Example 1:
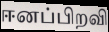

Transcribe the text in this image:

ஈனப்பிறவி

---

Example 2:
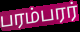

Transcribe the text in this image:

பரம்பரர்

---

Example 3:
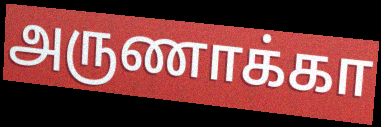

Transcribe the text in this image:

அருணாக்கா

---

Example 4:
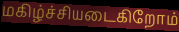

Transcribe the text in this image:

மகிழ்ச்சியடைகிறோம்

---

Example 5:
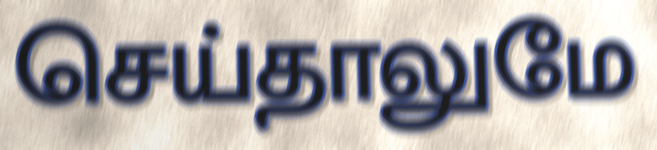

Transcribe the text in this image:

செய்தாலுமே